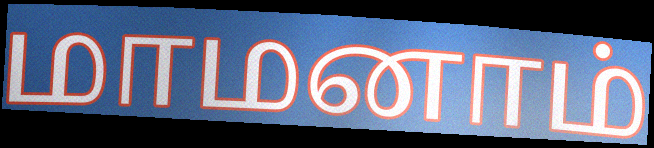
மாமனாம்